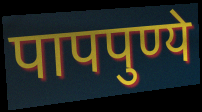
पापपुण्ये